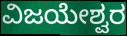
ವಿಜಯೇಶ್ವರ